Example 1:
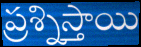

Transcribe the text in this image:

ప్రశ్నిస్తాయి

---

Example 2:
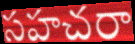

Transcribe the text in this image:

సహచరా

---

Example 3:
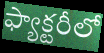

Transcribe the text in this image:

ఫ్యాక్టరీలో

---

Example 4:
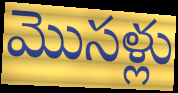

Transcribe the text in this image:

మొసళ్లు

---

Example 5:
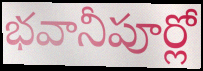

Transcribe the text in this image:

భవానీపూర్లో